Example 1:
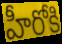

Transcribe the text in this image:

హీరోకి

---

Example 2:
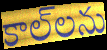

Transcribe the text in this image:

కాల్‌లను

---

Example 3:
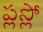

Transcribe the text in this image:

ప్లస్లో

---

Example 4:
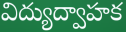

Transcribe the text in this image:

విద్యుద్వాహక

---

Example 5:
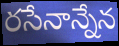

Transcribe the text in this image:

రసేనాన్నేన